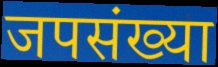
जपसंख्या